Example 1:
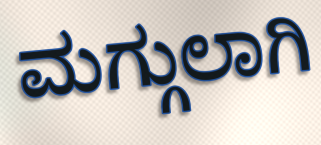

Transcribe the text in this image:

ಮಗ್ಗುಲಾಗಿ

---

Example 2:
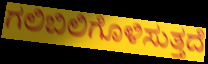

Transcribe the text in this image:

ಗಲಿಬಿಲಿಗೊಳಿಸುತ್ತದೆ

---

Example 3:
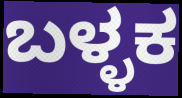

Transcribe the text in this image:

ಬಳ್ಳಕ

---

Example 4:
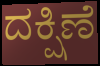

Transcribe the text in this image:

ದಕ್ಷಿಣೆ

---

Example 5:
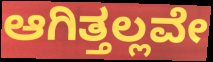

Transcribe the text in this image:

ಆಗಿತ್ತಲ್ಲವೇ